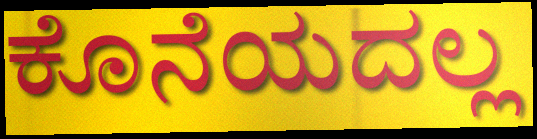
ಕೊನೆಯದಲ್ಲ